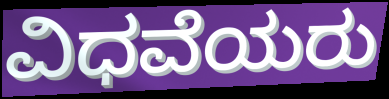
ವಿಧವೆಯರು